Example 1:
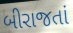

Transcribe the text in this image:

બીરાજતાં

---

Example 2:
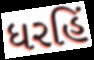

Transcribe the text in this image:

ધરહિં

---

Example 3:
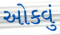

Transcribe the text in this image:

ઓકવું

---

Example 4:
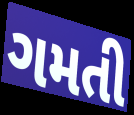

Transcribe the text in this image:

ગમતી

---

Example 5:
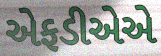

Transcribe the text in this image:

એફડીએએ